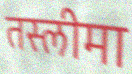
तस्लीमा